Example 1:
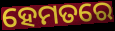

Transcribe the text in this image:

ହେମତରେ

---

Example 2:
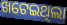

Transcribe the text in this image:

ଖଟେଇଥିଲା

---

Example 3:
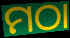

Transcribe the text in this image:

ମଠା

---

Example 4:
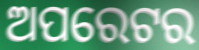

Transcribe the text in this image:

ଅପରେଟର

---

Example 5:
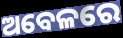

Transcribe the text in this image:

ଅବେଳରେ